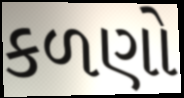
કળણો